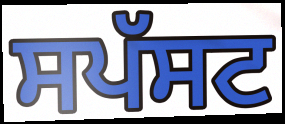
ਸਪੱਸਟ